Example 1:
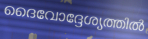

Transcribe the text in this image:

ദൈവോദ്ദേശ്യത്തിൽ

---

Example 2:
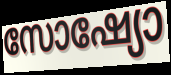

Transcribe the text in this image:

സോഷ്യോ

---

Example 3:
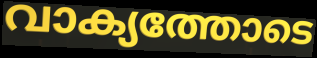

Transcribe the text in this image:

വാക്യത്തോടെ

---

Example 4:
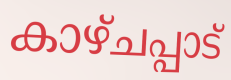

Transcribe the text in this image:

കാഴ്ചപ്പാട്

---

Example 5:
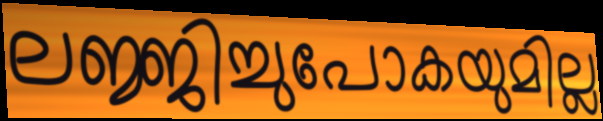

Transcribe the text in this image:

ലജ്ജിച്ചുപോകയുമില്ല